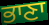
ਭਾਣਾ